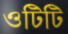
ওটিটি